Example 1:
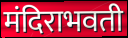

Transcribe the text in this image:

मंदिराभवती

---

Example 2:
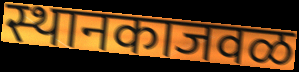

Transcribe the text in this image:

स्थानकाजवळ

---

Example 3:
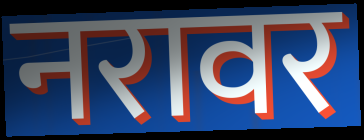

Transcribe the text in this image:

नरावर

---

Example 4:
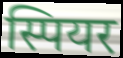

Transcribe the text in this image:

स्पियर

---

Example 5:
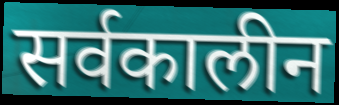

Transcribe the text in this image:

सर्वकालीन